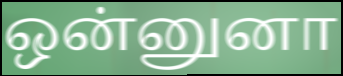
ஒன்னுனா